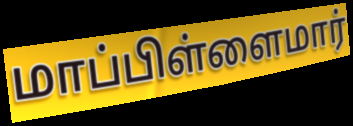
மாப்பிள்ளைமார்